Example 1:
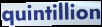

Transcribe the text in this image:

quintillion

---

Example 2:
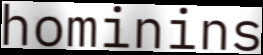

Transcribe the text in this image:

hominins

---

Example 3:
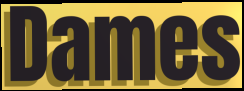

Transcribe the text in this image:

Dames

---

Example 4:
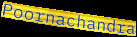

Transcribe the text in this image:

Poornachandra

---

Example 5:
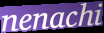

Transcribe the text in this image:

nenachi